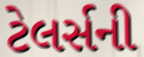
ટેલર્સની